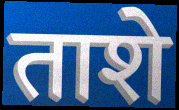
ताशे